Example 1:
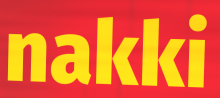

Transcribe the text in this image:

nakki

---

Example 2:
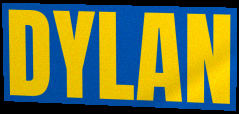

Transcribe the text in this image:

DYLAN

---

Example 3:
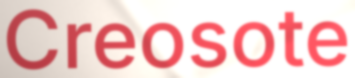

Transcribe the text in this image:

Creosote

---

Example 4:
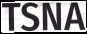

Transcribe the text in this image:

TSNA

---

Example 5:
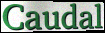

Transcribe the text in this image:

Caudal